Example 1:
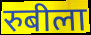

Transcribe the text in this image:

रुबीला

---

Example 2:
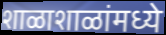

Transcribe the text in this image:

शाळाशाळांमध्ये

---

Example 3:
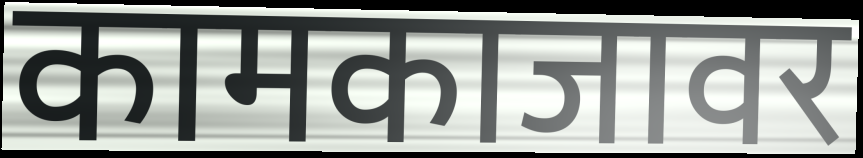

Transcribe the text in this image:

कामकाजावर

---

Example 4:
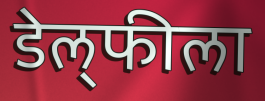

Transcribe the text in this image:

डेल्फीला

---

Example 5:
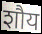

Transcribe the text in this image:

शौय